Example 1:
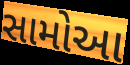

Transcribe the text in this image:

સામોઆ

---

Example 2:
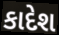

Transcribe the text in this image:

કાદેશ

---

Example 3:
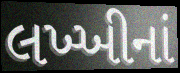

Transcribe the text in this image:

લખ્ખીનાં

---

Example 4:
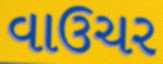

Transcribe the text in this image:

વાઉચર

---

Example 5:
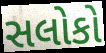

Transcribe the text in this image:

સલોકો